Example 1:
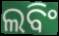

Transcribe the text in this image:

ଲବିଂ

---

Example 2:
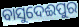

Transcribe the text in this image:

ବାସୁଦେଈପୁର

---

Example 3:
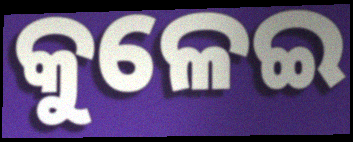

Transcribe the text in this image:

କୁଳେଇ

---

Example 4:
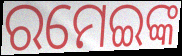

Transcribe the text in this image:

ରମେଇଙ୍କ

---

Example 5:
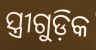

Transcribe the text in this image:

ସ୍ତ୍ରୀଗୁଡ଼ିକ